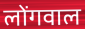
लोंगवाल